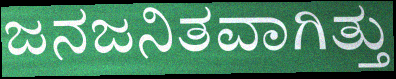
ಜನಜನಿತವಾಗಿತ್ತು